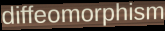
diffeomorphism